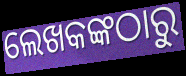
ଲେଖକଙ୍କଠାରୁ